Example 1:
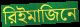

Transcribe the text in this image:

রিইমাজিনে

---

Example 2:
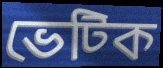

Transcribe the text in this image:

ভেট্কি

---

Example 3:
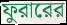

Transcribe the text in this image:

ফুরারের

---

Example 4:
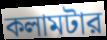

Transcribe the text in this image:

কলামটার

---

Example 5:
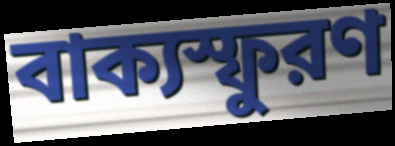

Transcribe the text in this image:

বাক্যস্ফুরণ